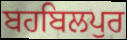
ਬਹਬਿਲਪੁਰ